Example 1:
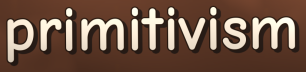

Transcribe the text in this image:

primitivism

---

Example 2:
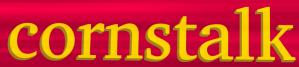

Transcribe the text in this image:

cornstalk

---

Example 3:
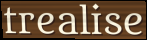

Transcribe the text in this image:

trealise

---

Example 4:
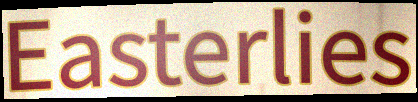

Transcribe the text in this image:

Easterlies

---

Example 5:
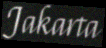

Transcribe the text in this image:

Jakarta